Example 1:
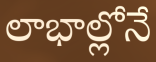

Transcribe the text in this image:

లాభాల్లోనే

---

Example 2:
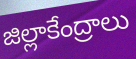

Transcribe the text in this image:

జిల్లాకేంద్రాలు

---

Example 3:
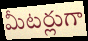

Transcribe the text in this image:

మీటర్లుగా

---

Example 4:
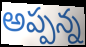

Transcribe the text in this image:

అప్పన్న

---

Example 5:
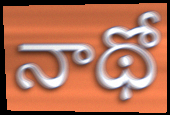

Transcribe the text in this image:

నాథో